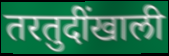
तरतुदींखाली